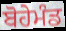
ਬੋਹੇਮੰਡ